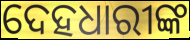
ଦେହଧାରୀଙ୍କ